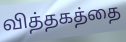
வித்தகத்தை